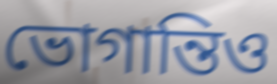
ভোগান্তিও